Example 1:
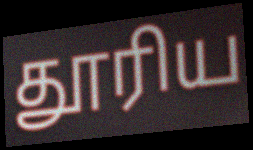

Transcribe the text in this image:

தூரிய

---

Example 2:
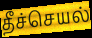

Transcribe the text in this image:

தீச்செயல்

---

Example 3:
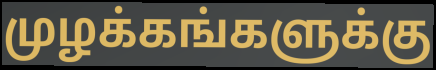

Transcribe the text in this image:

முழக்கங்களுக்கு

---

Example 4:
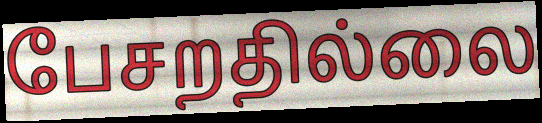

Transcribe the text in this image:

பேசறதில்லை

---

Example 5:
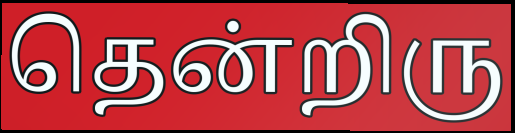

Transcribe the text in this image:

தென்றிரு